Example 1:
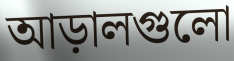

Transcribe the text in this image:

আড়ালগুলো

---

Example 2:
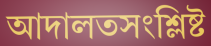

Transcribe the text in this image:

আদালতসংশ্লিষ্ট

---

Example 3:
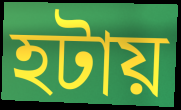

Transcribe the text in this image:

হটায়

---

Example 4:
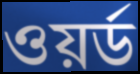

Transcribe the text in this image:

ওয়র্ড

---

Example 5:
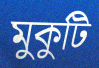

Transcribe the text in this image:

মুকুটি